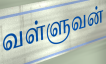
வள்ளுவன்